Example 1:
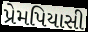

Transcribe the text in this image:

પ્રેમપિયાસી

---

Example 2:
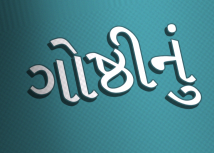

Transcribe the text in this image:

ગોષ્ઠીનું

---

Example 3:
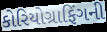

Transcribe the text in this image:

કોરિયોગ્રાફિંગની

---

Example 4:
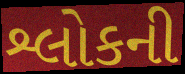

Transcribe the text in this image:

શ્લોકની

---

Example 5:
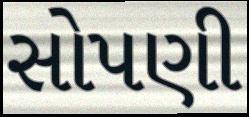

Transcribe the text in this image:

સોપણી